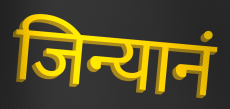
जिन्यानं